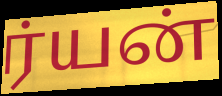
ர்யன்